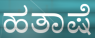
ಹತಾಷೆ